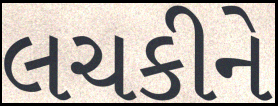
લચકીને